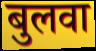
बुलवा